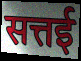
सत्तई